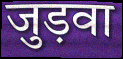
जुड़वा